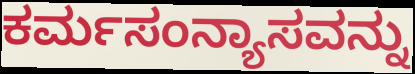
ಕರ್ಮಸಂನ್ಯಾಸವನ್ನು